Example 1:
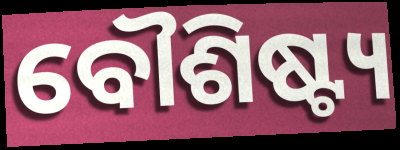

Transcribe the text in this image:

ବୌଶିଷ୍ଟ୍ୟ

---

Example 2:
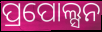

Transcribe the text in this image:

ପ୍ରପୋଲ୍ସନ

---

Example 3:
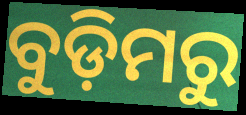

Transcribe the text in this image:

ବୁଡ଼ିମରୁ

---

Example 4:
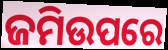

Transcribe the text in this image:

ଜମିଉପରେ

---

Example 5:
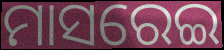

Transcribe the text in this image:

ମାସରେଇ